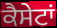
ਕੈਸੇਟਾਂ